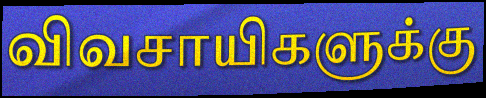
விவசாயிகளுக்கு